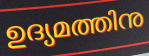
ഉദ്യമത്തിനു